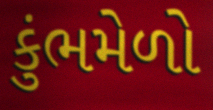
કુંભમેળો